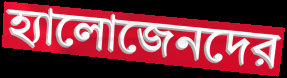
হ্যালোজেনদের